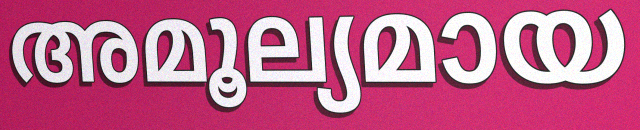
അമൂല്യമായ